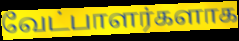
வேட்பாளர்களாக